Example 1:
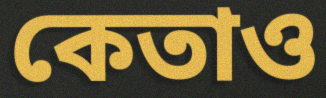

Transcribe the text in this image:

কেতাও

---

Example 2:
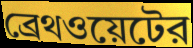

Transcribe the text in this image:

ব্রেথওয়েটের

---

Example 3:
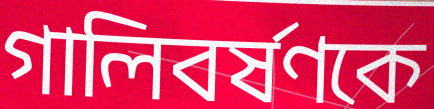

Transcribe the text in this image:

গালিবর্ষণকে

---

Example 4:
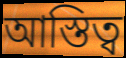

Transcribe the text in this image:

আস্তিত্ব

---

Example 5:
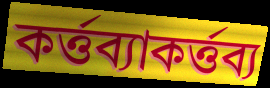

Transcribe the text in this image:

কর্ত্তব্যাকর্ত্তব্য